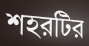
শহরটির